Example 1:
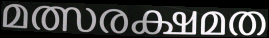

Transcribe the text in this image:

മത്സരക്ഷമത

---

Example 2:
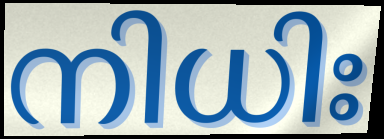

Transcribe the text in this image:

നിധിഃ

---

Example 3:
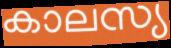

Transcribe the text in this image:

കാലസ്യ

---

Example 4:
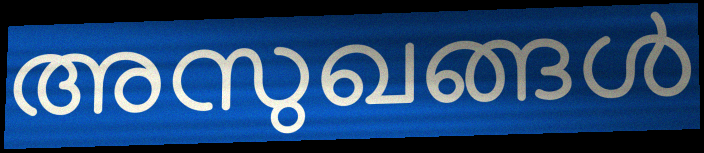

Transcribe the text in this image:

അസുഖങ്ങൾ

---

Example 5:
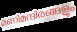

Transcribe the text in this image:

മണിമന്ദിരങ്ങളും